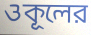
ওকূলের